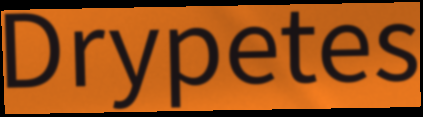
Drypetes